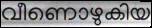
വീണൊഴുകിയ